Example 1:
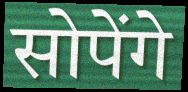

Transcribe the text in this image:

सोपेंगे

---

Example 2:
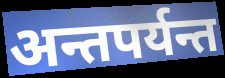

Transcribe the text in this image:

अन्तपर्यन्त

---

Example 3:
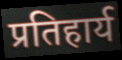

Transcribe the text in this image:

प्रतिहार्य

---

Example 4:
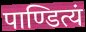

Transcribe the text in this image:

पाण्डित्यं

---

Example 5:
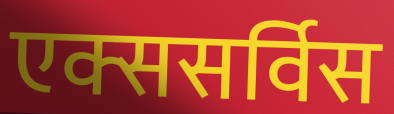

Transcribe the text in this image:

एक्ससर्विस